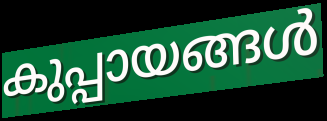
കുപ്പായങ്ങൾ